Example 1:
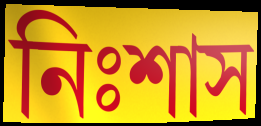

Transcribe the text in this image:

নিঃশাস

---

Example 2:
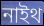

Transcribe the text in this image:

নাইথ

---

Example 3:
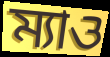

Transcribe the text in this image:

ম্যাও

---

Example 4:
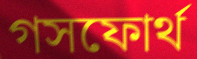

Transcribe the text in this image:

গসফোর্থ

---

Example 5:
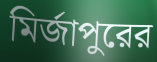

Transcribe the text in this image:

মির্জাপুরের